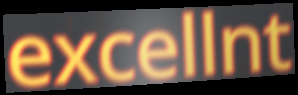
excellnt